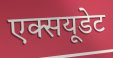
एक्सयूडेट